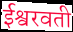
ईश्वरवती